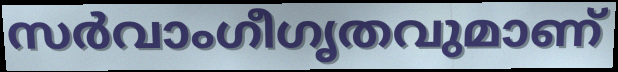
സർവാംഗീഗൃതവുമാണ്